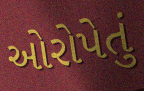
ઓરોપેતું